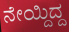
ನೇಯ್ದಿದ್ದ